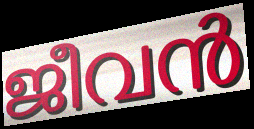
ജീവൻ